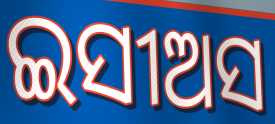
ଇସୀଅସ